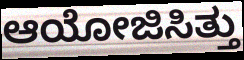
ಆಯೋಜಿಸಿತ್ತು